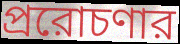
প্ররোচণার